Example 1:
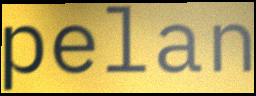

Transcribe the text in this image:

pelan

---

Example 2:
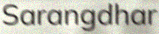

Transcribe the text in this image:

Sarangdhar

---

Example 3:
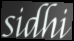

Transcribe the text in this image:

sidhi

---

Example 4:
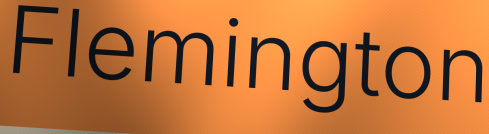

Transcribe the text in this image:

Flemington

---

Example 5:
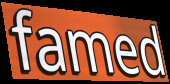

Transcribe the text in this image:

famed